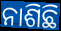
ନାଶିଛି